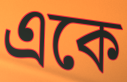
একে